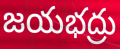
జయభద్రు